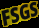
FSGS